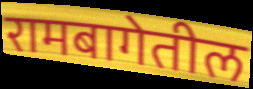
रामबागेतील